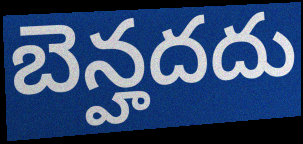
బెన్హదదు